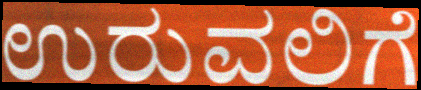
ಉರುವಲಿಗೆ